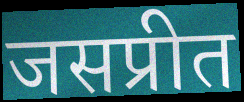
जसप्रीत